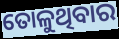
ତୋଳୁଥିବାର